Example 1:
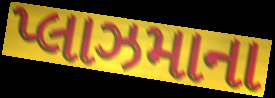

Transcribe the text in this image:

પ્લાઝમાના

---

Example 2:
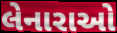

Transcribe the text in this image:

લેનારાઓ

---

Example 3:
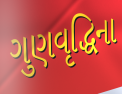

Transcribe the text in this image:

ગુણવૃદ્ધિના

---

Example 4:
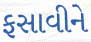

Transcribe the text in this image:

ફસાવીને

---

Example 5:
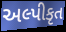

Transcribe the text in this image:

અલ્પીકૃત